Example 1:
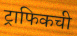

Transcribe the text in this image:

ट्राफिकची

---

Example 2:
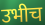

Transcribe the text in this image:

उभीच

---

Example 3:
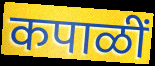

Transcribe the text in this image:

कपाळीं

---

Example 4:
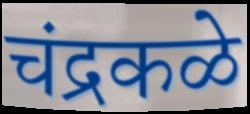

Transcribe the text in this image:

चंद्रकळे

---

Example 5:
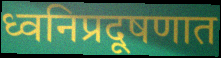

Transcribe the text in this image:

ध्वनिप्रदूषणात